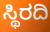
ಸ್ಥಿರದಿ